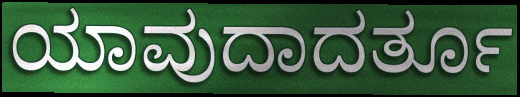
ಯಾವುದಾದರ್ತೂ